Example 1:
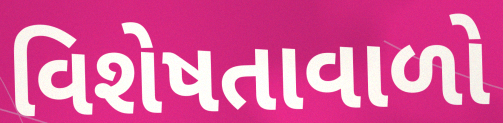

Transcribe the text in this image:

વિશેષતાવાળો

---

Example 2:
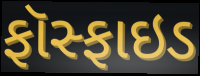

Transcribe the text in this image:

ફૉસ્ફાઇડ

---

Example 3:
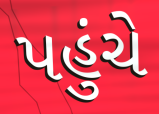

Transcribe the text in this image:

પહુંચે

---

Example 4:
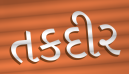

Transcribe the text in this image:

તકદીર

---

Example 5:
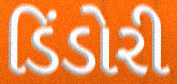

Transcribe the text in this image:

ડિંડોરી